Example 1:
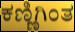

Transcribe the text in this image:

ಕಣ್ಣಿಗಿಂತ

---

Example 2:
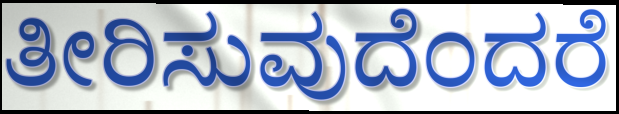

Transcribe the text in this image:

ತೀರಿಸುವುದೆಂದರೆ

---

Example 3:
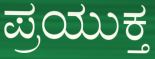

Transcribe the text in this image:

ಪ್ರಯುಕ್ತ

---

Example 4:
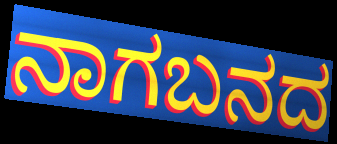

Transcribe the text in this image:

ನಾಗಬನದ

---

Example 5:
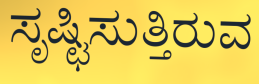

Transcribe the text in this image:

ಸೃಷ್ಟಿಸುತ್ತಿರುವ